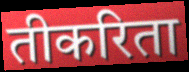
तीकरिता